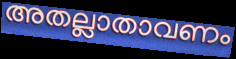
അതല്ലാതാവണം